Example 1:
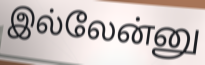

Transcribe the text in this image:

இல்லேன்னு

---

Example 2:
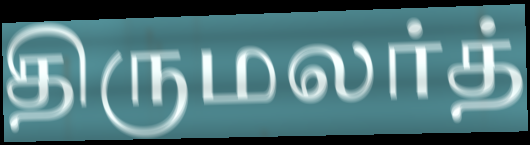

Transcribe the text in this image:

திருமலர்த்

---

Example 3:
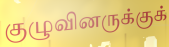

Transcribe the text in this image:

குழுவினருக்குக்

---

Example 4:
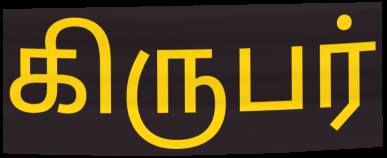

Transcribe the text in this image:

கிருபர்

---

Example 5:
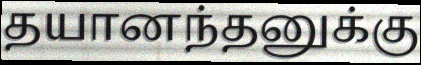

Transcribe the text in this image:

தயானந்தனுக்கு